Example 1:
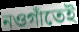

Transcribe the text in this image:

নওগাঁতেই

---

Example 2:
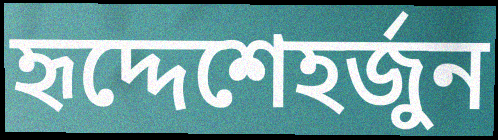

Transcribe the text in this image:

হৃদ্দেশেহর্জুন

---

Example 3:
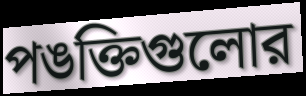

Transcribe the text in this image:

পঙক্তিগুলোর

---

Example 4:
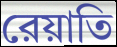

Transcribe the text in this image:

রেয়াতি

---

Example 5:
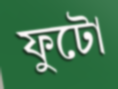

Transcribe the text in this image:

ফুটো